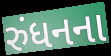
રુંધનના